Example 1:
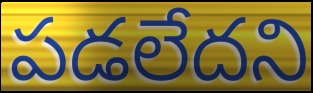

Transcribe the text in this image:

పడలేదని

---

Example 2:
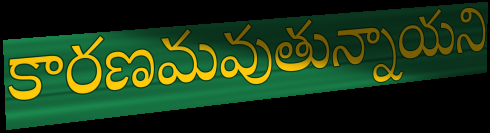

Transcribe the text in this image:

కారణమవుతున్నాయని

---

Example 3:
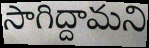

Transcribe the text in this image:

సాగిద్దామని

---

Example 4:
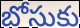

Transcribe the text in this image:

బోసుకు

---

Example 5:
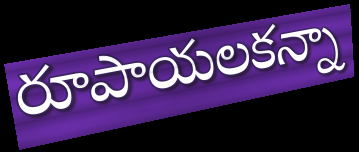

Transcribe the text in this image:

రూపాయలకన్నా